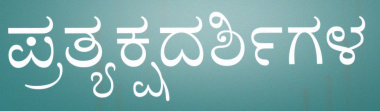
ಪ್ರತ್ಯಕ್ಷದರ್ಶಿಗಳ